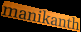
manikanth